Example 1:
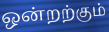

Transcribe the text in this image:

ஒன்றற்கும்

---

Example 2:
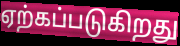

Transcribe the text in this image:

ஏற்கப்படுகிறது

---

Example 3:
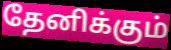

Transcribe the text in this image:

தேனிக்கும்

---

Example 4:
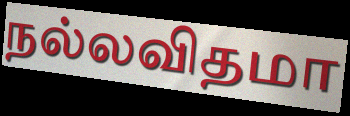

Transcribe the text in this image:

நல்லவிதமா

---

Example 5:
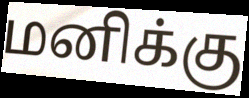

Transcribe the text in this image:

மனிக்கு